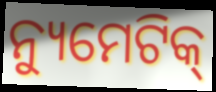
ନ୍ୟୁମେଟିକ୍